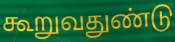
கூறுவதுண்டு